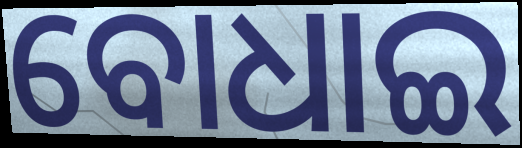
ବୋଧାଇ